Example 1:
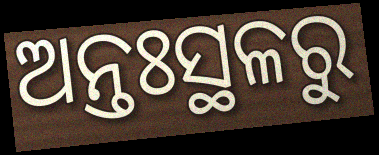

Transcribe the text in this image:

ଅନ୍ତଃସ୍ଥଳରୁ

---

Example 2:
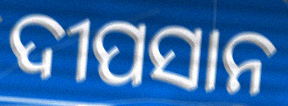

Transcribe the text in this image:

ଦୀପସାନ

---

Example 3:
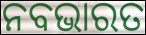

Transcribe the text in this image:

ନବଭାରତ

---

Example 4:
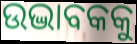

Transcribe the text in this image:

ଉଦ୍ଭାବକକୁ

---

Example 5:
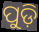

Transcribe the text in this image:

ପୁଡ଼ି